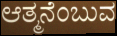
ಆತ್ಮನೆಂಬುವ